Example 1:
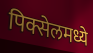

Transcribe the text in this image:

पिक्सेलमध्ये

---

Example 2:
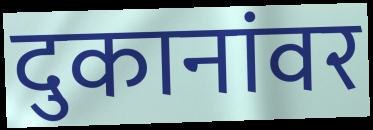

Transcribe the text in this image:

दुकानांवर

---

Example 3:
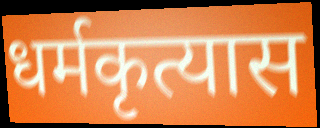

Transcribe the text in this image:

धर्मकृत्यास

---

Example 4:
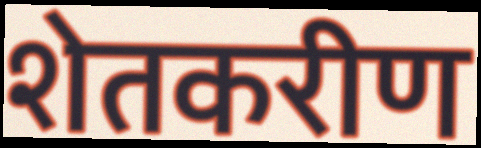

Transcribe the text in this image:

शेतकरीण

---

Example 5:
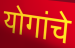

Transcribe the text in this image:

योगांचे